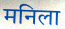
मनिला